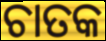
ଚାତକ